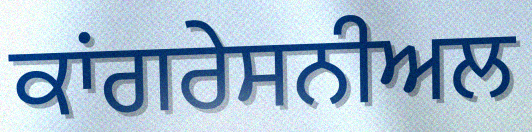
ਕਾਂਗਰੇਸਨੀਅਲ